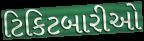
ટિકિટબારીઓ